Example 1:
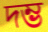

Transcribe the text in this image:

দম্ভ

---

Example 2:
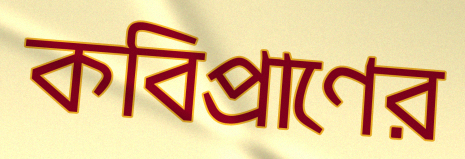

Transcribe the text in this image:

কবিপ্রাণের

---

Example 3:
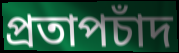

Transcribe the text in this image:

প্রতাপচাঁদ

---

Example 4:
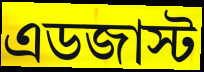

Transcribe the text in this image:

এডজাস্ট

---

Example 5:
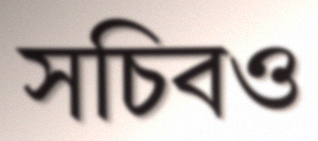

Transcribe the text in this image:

সচিবও